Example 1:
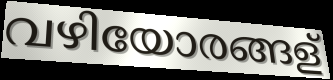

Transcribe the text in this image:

വഴിയോരങ്ങള്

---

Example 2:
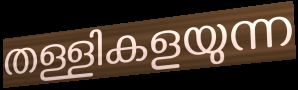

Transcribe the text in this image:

തള്ളികളയുന്ന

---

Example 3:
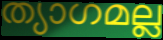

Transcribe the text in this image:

ത്യാഗമല്ല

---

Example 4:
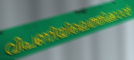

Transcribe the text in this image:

വിപണിയിലെത്തിക്കാൻ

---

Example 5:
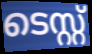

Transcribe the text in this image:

ടെസ്റ്റ്